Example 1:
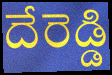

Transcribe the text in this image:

దేరెడ్డి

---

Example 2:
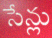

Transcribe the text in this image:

సేన్లు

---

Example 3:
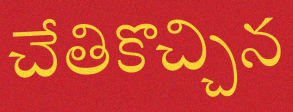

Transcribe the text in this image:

చేతికొచ్చిన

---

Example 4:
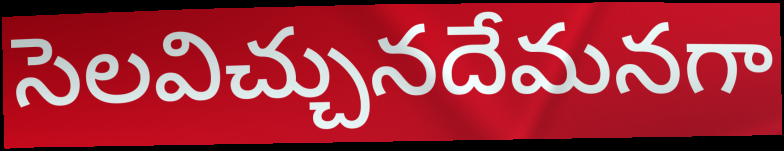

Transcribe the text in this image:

సెలవిచ్చునదేమనగా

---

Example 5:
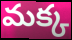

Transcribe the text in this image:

మక్క